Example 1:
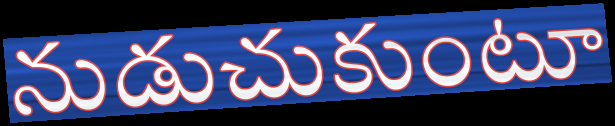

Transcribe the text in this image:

నుడుచుకుంటూ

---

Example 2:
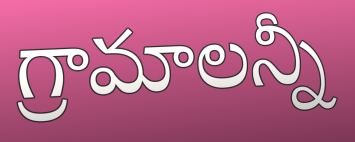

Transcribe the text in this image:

గ్రామాలన్నీ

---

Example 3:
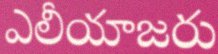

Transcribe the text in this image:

ఎలీయాజరు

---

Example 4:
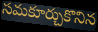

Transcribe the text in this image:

సమకూర్చుకొనిన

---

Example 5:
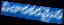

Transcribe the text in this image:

విచారకరమైన